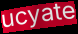
ucyate